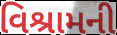
વિશ્રામની